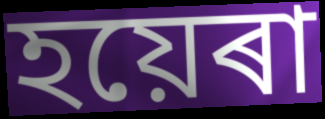
হয়েৰা